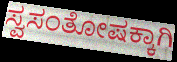
ಸ್ವಸಂತೋಷಕ್ಕಾಗಿ